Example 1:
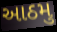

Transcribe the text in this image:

આઠમુ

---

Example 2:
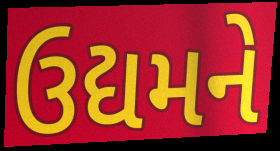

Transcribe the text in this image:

ઉદ્યમને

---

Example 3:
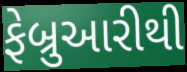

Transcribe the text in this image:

ફેબ્રુઆરીથી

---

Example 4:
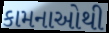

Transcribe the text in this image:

કામનાઓથી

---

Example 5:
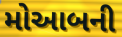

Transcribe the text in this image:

મોઆબની